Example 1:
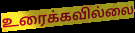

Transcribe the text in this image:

உரைக்கவில்லை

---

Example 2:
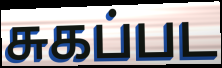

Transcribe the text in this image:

சுகப்பட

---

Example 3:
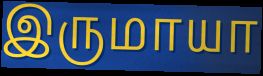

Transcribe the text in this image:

இருமாயா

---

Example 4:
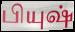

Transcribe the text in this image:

பியுஷ்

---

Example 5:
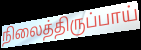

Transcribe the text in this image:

நிலைத்திருப்பாய்